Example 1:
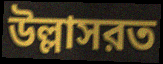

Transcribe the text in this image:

উল্লাসরত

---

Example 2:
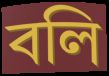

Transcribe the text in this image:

বলি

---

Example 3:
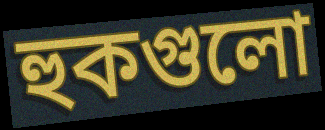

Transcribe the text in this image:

হুকগুলো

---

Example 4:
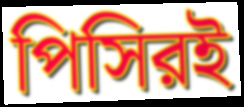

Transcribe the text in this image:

পিসিরই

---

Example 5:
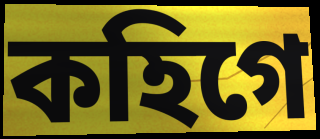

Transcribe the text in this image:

কহিগে